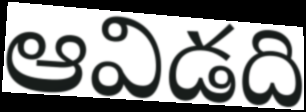
ఆవిడది